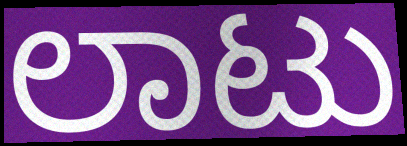
ಲಾಟು